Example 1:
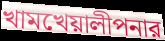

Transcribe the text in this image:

খামখেয়ালীপনার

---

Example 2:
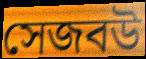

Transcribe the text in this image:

সেজবউ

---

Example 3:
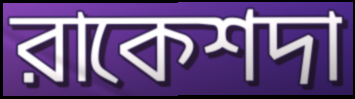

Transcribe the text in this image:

রাকেশদা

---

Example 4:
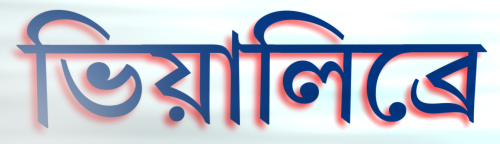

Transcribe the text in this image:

ভিয়ালিব্রে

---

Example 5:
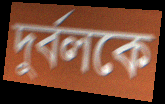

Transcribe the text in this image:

দুর্বলকে